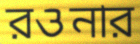
রওনার